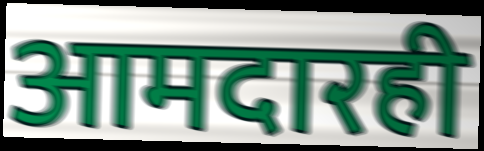
आमदारही